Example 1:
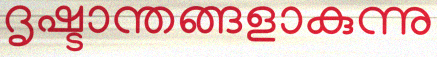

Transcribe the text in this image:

ദൃഷ്ടാന്തങ്ങളാകുന്നു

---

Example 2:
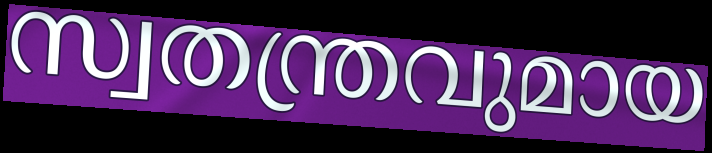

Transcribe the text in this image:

സ്വതന്ത്രവുമായ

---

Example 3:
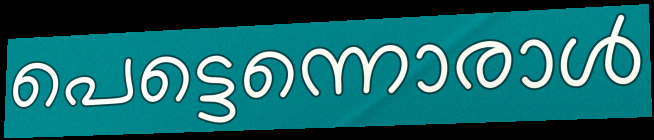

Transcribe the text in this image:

പെട്ടെന്നൊരാൾ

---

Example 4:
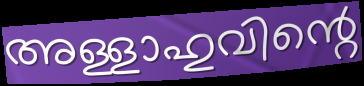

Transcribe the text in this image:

അള്ളാഹുവിന്റെ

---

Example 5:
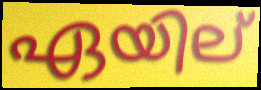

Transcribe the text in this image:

ഏയില്